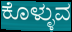
ಕೊಳ್ಳುವ